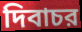
দিবাচর